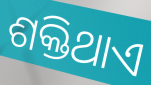
ଶକ୍ତିଥାଏ